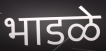
भाडळे